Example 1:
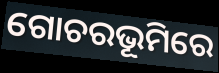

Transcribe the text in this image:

ଗୋଚରଭୂମିରେ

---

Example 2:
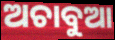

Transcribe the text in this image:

ଅଚାବୁଆ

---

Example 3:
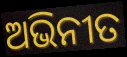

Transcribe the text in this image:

ଅଭିନୀତ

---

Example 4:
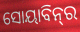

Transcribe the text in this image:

ସୋୟାବିନ୍‌ର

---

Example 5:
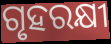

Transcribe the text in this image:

ଗୃହରକ୍ଷୀ